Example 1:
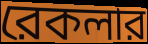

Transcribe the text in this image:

রেকলার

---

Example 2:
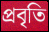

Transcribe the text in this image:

প্রবৃতি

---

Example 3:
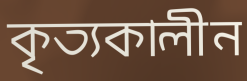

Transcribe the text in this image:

কৃত্যকালীন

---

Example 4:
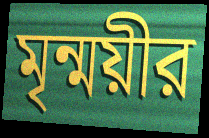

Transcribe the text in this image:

মৃন্ময়ীর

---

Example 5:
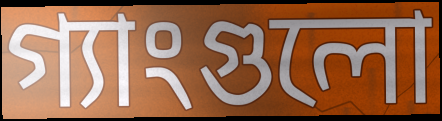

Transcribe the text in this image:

গ্যাংগুলো